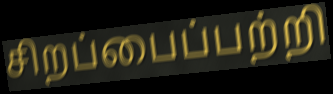
சிறப்பைப்பற்றி